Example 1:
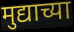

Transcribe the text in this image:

मुद्याच्या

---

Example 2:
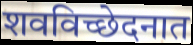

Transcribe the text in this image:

शवविच्छेदनात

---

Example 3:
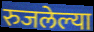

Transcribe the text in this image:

रुजलेल्या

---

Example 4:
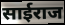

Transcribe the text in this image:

साईराज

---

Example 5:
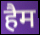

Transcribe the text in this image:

हैम